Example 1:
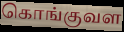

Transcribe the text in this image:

கொங்குவள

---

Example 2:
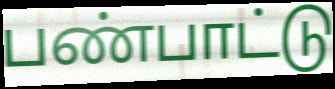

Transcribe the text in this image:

பண்பாட்டு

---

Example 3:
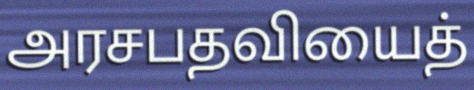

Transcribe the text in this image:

அரசபதவியைத்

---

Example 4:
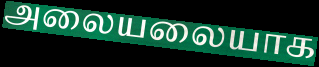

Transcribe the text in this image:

அலையலையாக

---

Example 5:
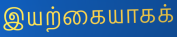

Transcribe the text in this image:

இயற்கையாகக்